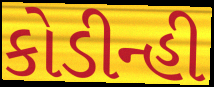
કોડીન્હી